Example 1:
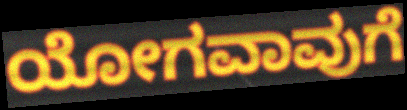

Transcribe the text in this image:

ಯೋಗವಾವುಗೆ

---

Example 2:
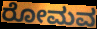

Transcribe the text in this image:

ರೋಮವ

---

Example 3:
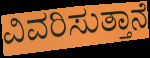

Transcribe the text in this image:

ವಿವರಿಸುತ್ತಾನೆ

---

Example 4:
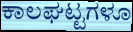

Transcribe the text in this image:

ಕಾಲಘಟ್ಟಗಳೂ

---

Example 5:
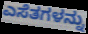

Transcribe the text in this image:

ಎಸೆತಗಳನ್ನು